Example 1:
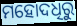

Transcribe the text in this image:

ମହୋଦଧିରୁ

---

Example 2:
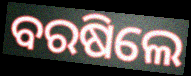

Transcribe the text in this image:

ବରଷିଲେ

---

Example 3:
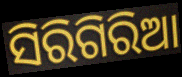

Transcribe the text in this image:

ସିରିଗିରିଆ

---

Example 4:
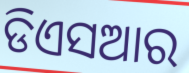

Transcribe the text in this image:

ଡିଏସଆର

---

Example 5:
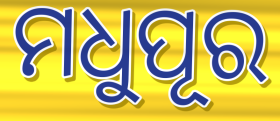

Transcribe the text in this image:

ମଧୁପୂର